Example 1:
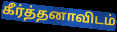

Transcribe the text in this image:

கீர்த்தனாவிடம்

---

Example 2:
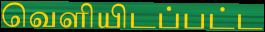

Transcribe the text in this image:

வெளியிடப்பட்ட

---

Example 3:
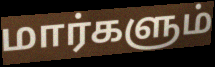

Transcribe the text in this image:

மார்களும்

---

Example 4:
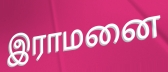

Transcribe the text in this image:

இராமனை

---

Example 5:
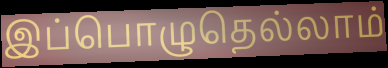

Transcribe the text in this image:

இப்பொழுதெல்லாம்